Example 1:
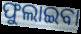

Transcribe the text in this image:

ଫୁଲାଇବା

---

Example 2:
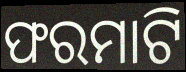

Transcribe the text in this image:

ଫରମାଟି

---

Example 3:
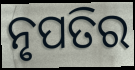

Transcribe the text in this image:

ନୃପତିର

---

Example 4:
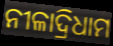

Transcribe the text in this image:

ନୀଳାଦ୍ରିଧାମ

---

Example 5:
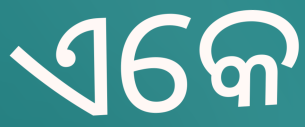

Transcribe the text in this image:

ଏକେ